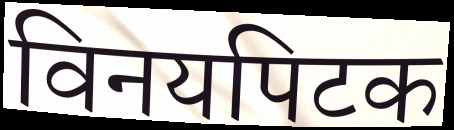
विनयपिटक